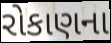
રોકાણના